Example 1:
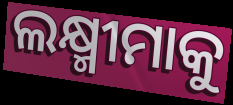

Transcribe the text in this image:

ଲକ୍ଷ୍ମୀମାକୁ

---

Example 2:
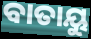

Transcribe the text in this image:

ବାତାୟୁ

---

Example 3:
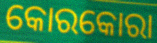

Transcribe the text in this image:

କୋରକୋରା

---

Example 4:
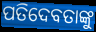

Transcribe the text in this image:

ପତିଦେବତାଙ୍କୁ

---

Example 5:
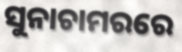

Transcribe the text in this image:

ସୁନାଚାମରରେ